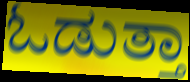
ಓಡುತ್ತಾ